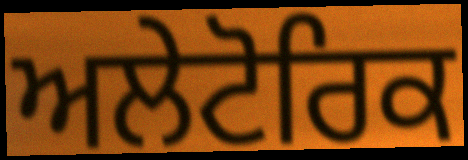
ਅਲੇਟੋਰਿਕ